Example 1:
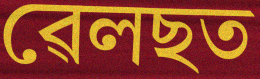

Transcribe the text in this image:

ৱেলছত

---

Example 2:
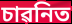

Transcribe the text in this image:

চাৱনিত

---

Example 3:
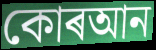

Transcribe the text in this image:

কোৰআন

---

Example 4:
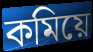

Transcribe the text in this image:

কমিয়ে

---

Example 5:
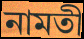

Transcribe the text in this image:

নামতী